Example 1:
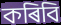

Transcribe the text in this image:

কৰিবি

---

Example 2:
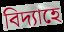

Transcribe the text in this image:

বিদ্যাহে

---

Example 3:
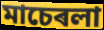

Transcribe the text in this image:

মাচেৰলা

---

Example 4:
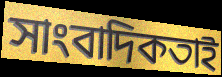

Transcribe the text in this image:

সাংবাদিকতাই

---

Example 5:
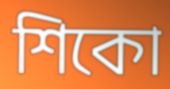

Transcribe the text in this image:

শিকো